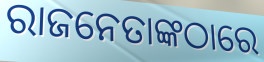
ରାଜନେତାଙ୍କଠାରେ